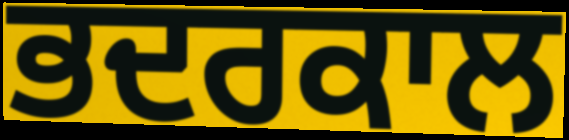
ਭਦਰਕਾਲ